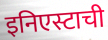
इनिएस्टाची